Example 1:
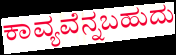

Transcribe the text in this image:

ಕಾವ್ಯವೆನ್ನಬಹುದು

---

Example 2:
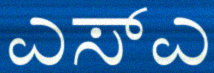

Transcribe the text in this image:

ಎಸ್ಎ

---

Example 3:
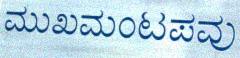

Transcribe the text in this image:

ಮುಖಮಂಟಪವು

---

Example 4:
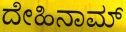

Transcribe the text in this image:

ದೇಹಿನಾಮ್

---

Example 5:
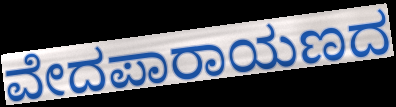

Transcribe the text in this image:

ವೇದಪಾರಾಯಣದ